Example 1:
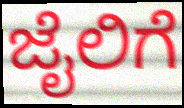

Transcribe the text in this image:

ಜೈಲಿಗೆ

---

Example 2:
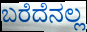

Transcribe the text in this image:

ಬರೆದೆನಲ್ಲ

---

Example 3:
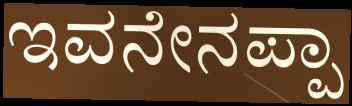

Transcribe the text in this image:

ಇವನೇನಪ್ಪಾ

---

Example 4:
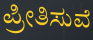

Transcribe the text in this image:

ಪ್ರೀತಿಸುವೆ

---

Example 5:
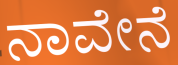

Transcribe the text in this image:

ನಾವೇನೆ